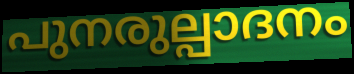
പുനരുല്പാദനം